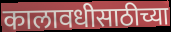
कालावधीसाठीच्या